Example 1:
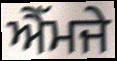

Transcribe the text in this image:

ਐੱਮਜੇ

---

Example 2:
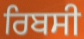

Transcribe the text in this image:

ਰਿਬਸੀ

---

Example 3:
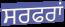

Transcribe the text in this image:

ਸਰਫਰਾਂ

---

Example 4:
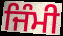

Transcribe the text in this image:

ਜਿੰਮੀ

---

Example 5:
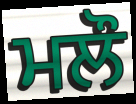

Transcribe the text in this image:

ਮਲੌ